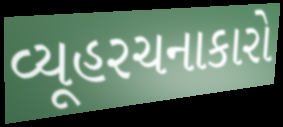
વ્યૂહરચનાકારો